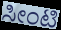
ಸೀಂಟಿ